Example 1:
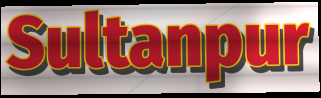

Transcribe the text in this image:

Sultanpur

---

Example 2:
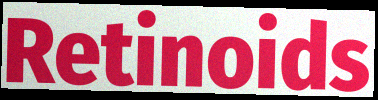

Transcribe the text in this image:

Retinoids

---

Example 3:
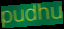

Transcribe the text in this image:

pudhu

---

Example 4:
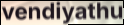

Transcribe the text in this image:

vendiyathu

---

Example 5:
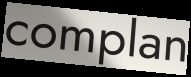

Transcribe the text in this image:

complan